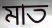
মাত